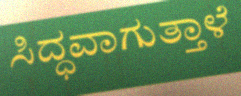
ಸಿದ್ಧವಾಗುತ್ತಾಳೆ